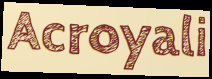
Acroyali